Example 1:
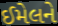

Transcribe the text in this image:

ઈમેલને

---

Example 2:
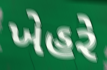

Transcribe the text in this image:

ખેહરે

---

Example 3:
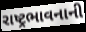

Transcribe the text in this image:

રાષ્ટ્રભાવનાની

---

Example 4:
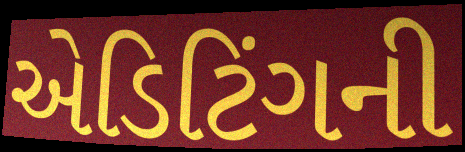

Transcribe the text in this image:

એડિટિંગની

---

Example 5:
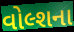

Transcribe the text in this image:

વોલ્શના